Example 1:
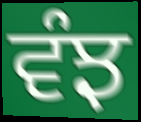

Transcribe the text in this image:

ਵੰਝ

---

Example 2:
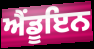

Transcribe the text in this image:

ਐਂਡੂਇਨ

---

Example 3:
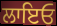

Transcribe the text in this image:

ਲਾਇਓ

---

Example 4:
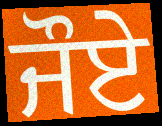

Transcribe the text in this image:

ਜੌਏ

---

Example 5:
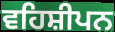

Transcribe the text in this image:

ਵਹਿਸ਼ੀਪਨ